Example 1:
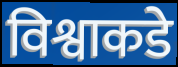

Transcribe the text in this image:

विश्वाकडे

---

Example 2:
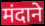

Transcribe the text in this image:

मंदाने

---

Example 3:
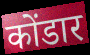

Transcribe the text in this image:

कोंडार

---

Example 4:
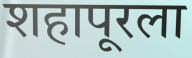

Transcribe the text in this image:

शहापूरला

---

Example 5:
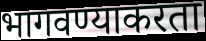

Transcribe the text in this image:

भागवण्याकरता